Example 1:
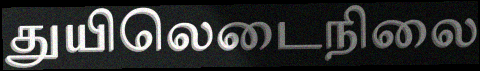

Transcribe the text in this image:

துயிலெடைநிலை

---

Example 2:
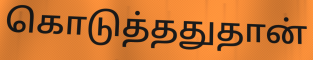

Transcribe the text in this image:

கொடுத்ததுதான்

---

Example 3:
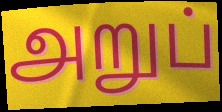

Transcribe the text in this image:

அறுப்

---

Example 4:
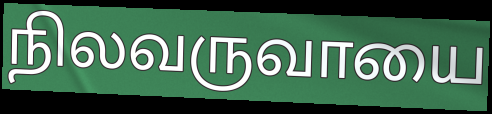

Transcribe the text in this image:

நிலவருவாயை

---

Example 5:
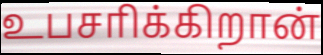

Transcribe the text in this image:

உபசரிக்கிறான்